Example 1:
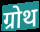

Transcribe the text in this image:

ग्रोथ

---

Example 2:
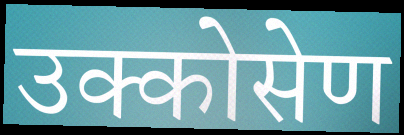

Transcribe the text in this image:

उक्कोसेण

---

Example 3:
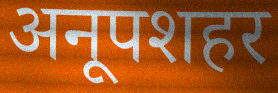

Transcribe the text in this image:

अनूपशहर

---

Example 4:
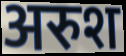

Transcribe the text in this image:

अरुश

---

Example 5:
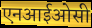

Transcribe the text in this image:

एनआईओसी